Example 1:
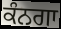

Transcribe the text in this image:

ਕੰਨਗਾ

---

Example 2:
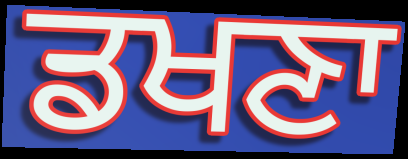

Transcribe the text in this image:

ਡਖਣਾ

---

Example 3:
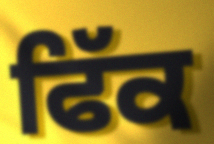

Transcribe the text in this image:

ਫਿੱਕ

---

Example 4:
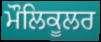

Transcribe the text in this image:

ਮੌਲਿਕੂਲਰ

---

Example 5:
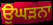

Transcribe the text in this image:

ਉਘੜਨਾ